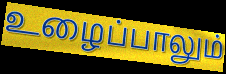
உழைப்பாலும்